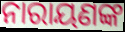
ନାରାୟଣଙ୍କ